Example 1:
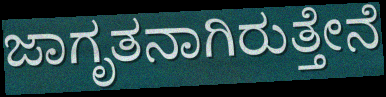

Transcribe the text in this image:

ಜಾಗೃತನಾಗಿರುತ್ತೇನೆ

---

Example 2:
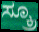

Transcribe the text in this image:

ಸ್ಕ್ರೂ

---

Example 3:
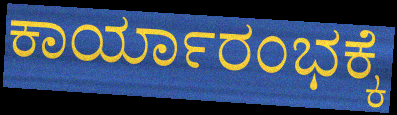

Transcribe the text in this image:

ಕಾರ್ಯಾರಂಭಕ್ಕೆ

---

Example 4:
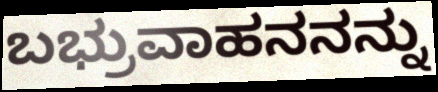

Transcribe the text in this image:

ಬಭ್ರುವಾಹನನನ್ನು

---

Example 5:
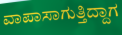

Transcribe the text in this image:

ವಾಪಾಸಾಗುತ್ತಿದ್ದಾಗ